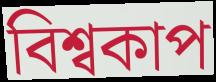
বিশ্বকাপ